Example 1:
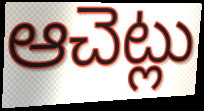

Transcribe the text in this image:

ఆచెట్లు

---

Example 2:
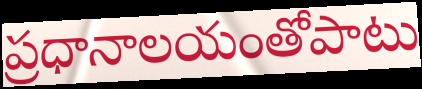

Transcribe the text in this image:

ప్రధానాలయంతోపాటు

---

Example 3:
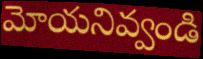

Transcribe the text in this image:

మోయనివ్వండి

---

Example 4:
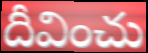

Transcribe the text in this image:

దీవించు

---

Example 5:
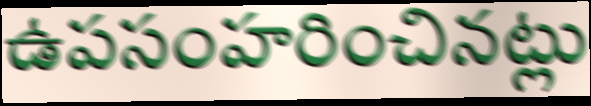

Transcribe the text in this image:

ఉపసంహరించినట్లు